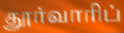
தூர்வாரிப்